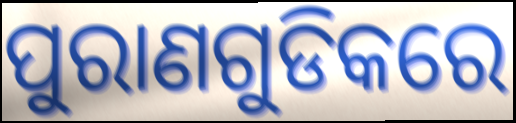
ପୁରାଣଗୁଡିକରେ